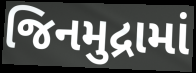
જિનમુદ્રામાં